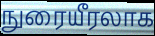
நுரையீரலாக